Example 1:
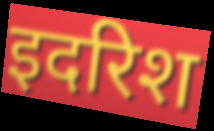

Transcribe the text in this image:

इदरिश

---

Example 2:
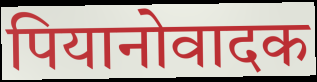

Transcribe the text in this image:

पियानोवादक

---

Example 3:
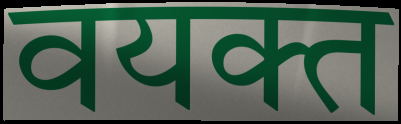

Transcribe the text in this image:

वयक्त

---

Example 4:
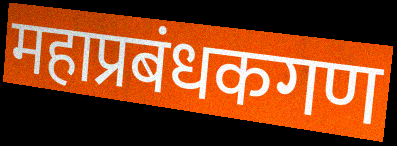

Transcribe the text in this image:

महाप्रबंधकगण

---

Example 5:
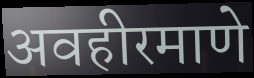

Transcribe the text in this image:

अवहीरमाणे